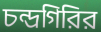
চন্দ্রগিরির